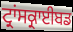
ਟ੍ਰਾਂਸਕ੍ਰਾਈਬਡ